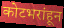
कोटभरांहून